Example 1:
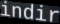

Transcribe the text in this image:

indir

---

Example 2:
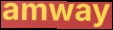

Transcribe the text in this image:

amway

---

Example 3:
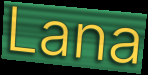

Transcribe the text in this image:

Lana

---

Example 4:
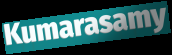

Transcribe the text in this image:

Kumarasamy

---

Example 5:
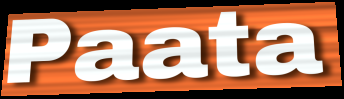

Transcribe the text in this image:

Paata